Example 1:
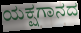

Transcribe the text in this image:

ಯಕ್ಷಗಾನದ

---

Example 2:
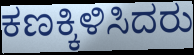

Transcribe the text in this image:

ಕಣಕ್ಕಿಳಿಸಿದರು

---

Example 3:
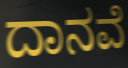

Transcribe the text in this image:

ದಾನವೆ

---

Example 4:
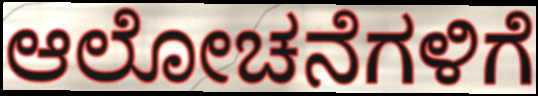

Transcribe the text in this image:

ಆಲೋಚನೆಗಳಿಗೆ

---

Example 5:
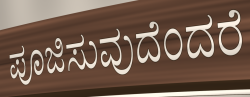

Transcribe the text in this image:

ಪೂಜಿಸುವುದೆಂದರೆ